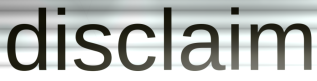
disclaim